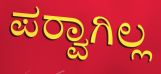
ಪರ‍್ವಾಗಿಲ್ಲ